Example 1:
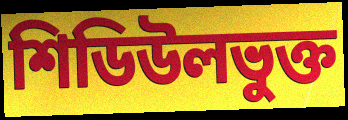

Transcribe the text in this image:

শিডিউলভুক্ত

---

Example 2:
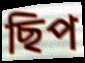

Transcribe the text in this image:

ছিপ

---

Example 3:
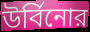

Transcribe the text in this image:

উর্বিনোর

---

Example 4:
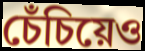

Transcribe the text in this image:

চেঁচিয়েও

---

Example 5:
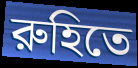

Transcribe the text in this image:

রুহিতে